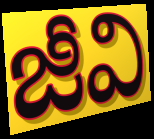
జీవి